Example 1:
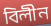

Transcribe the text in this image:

বিলীন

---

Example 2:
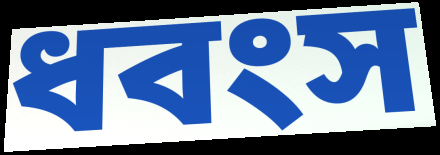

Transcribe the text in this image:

ধবংস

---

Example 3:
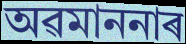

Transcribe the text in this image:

অৱমাননাৰ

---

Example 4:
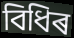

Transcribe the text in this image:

বিধিৰ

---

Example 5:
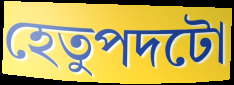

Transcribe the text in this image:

হেতুপদটো